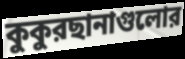
কুকুরছানাগুলোর